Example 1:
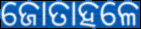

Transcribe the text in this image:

ଜୋତାହଳେ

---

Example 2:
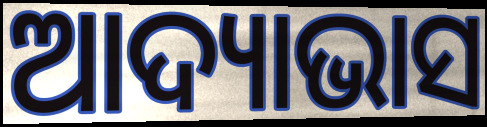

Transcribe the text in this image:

ଆଦ୍ୟାଭାସ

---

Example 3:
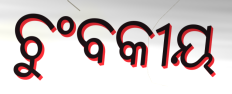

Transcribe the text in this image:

ଚୁଂବକୀୟ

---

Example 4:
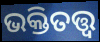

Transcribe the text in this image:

ଭକ୍ତିତତ୍ତ୍ୱ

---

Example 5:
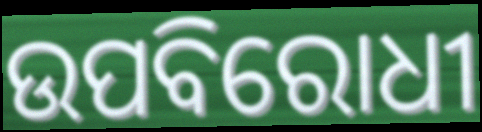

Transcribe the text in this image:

ଉପବିରୋଧୀ